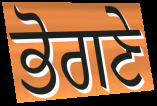
ਭੋਗਣੇ